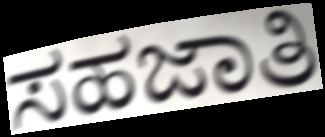
ಸಹಜಾತಿ